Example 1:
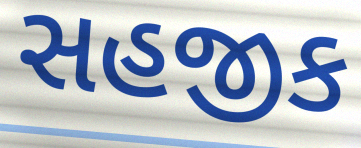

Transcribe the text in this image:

સહજીક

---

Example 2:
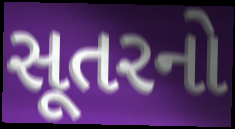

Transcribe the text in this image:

સૂતરનો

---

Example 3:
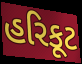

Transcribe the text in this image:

હરિકૂટ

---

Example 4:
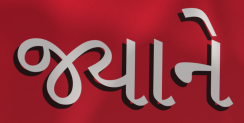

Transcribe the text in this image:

જ્યાને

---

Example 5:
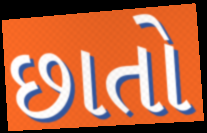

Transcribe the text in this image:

છાતો